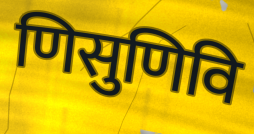
णिसुणिवि